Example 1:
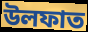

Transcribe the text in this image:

উলফাত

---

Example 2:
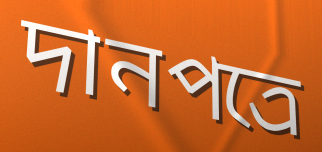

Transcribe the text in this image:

দানপত্রে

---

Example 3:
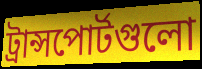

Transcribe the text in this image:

ট্রান্সপোর্টগুলো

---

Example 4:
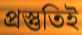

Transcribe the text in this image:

প্রস্তুতিই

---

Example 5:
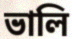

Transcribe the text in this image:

ভালি